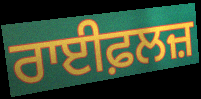
ਰਾਈਫ਼ਲਜ਼